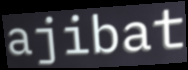
ajibat